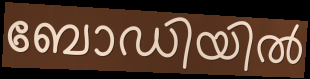
ബോഡിയിൽ